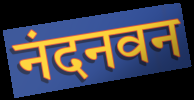
नंदनवन